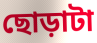
ছোড়াটা